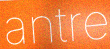
antre